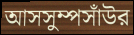
আসসুম্পসাঁউর